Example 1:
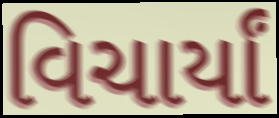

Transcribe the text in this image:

વિચાર્યાં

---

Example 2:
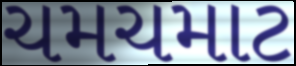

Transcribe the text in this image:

ચમચમાટ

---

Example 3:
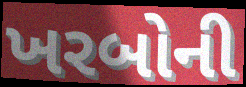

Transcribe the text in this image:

ખરબોની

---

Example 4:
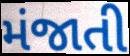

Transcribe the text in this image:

મંજાતી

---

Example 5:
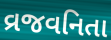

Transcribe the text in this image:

વ્રજવનિતા